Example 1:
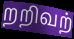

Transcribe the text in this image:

றறிவற்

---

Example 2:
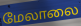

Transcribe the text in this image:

மேலாலை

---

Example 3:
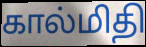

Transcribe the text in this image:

கால்மிதி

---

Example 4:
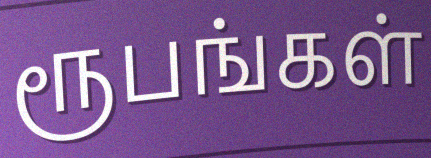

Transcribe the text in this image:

ரூபங்கள்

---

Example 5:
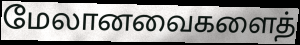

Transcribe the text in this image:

மேலானவைகளைத்